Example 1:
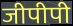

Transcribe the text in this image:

जीपीपी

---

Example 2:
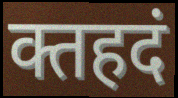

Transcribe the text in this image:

क्तहदं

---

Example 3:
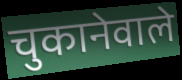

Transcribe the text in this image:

चुकानेवाले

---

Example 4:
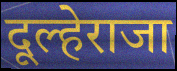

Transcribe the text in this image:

दूल्हेराजा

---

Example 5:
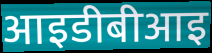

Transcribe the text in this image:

आइडीबीआइ